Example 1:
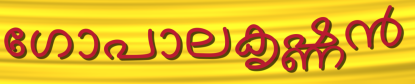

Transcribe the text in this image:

ഗോപാലകൃഷ്ണൻ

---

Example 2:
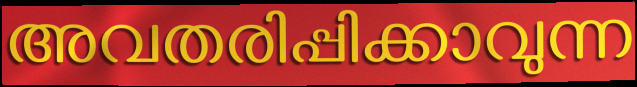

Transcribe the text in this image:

അവതരിപ്പിക്കാവുന്ന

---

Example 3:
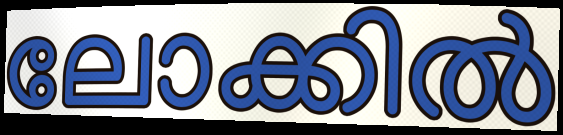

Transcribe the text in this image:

ലോക്കിൽ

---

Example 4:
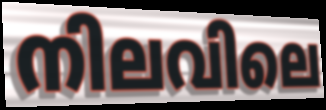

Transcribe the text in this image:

നിലവിലെ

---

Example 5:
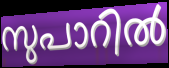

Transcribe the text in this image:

സുപാറിൽ